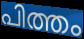
പിത്തം